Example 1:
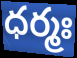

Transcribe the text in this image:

ధర్మః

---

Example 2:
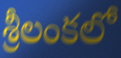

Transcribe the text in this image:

శ్రీలంకలో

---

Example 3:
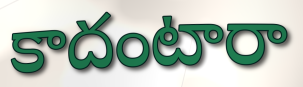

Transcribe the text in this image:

కాదంటారా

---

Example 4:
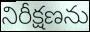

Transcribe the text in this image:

నిరీక్షణను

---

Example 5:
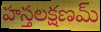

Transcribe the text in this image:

హస్తలక్షణమ్